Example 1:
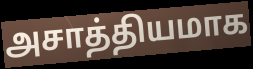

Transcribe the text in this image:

அசாத்தியமாக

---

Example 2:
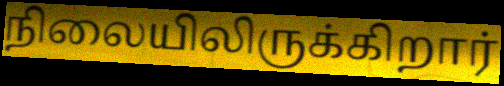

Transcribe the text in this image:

நிலையிலிருக்கிறார்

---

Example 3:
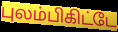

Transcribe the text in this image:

புலம்பிகிட்டே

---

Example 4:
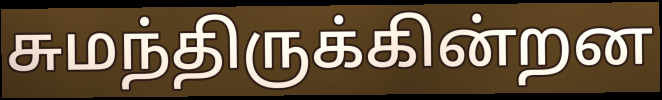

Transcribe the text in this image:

சுமந்திருக்கின்றன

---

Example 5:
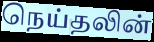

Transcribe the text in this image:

நெய்தலின்